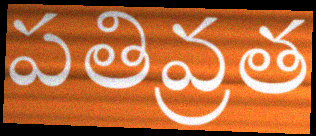
పతివ్రత